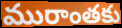
మురాంతకు